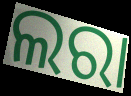
ଲରା